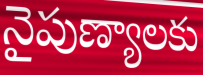
నైపుణ్యాలకు